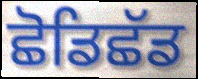
ਛੋਡਿਛੱਡ